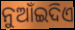
ନୁଆଁଇଦିଏ